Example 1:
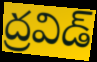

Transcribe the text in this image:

ద్రవిడ్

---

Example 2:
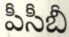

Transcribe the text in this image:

పీసీబీ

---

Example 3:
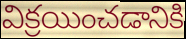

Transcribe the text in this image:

విక్రయించడానికి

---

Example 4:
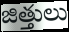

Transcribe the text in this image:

జిత్తులు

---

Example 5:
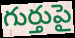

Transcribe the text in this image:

గుర్తుపై